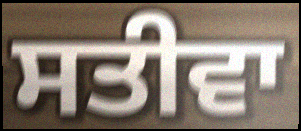
ਸਤੀਵਾ